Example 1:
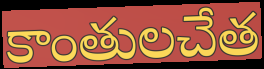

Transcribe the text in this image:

కాంతులచేత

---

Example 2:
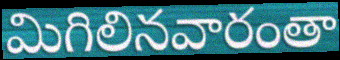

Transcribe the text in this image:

మిగిలినవారంతా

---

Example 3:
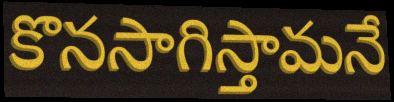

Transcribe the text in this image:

కొనసాగిస్తామనే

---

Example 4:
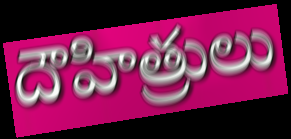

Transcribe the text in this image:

దౌహిత్రులు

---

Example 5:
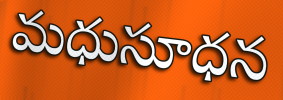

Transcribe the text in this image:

మధుసూధన